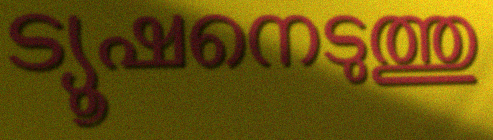
ട്യൂഷനെടുത്തു